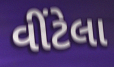
વીંટેલા